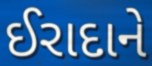
ઈરાદાને